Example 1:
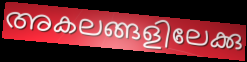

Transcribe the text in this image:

അകലങ്ങളിലേക്കു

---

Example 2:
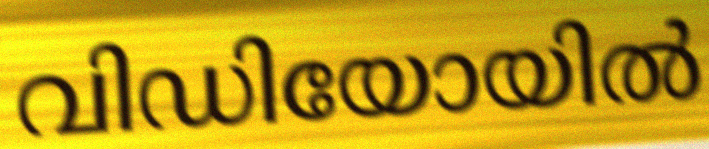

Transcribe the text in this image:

വിഡിയോയിൽ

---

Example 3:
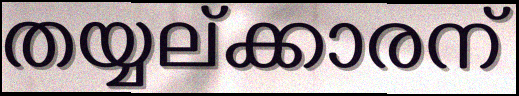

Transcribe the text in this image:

തയ്യല്ക്കാരന്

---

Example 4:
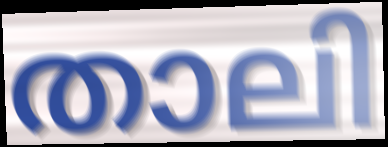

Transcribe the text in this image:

താലി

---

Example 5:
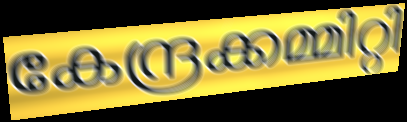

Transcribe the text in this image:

കേന്ദ്രക്കമ്മിറ്റി